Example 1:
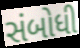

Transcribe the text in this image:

સંબોધી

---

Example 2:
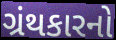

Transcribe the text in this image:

ગ્રંથકારનો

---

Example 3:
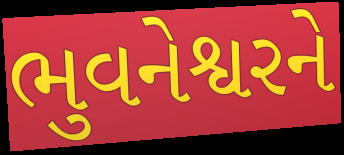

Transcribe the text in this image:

ભુવનેશ્વરને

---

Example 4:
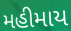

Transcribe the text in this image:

મહીમાય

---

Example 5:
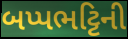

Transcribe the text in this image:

બપ્પભટ્ટિની